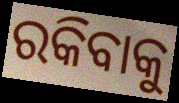
ରକିବାକୁ